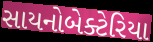
સાયનોબેક્ટેરિયા